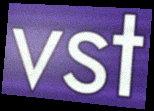
vst